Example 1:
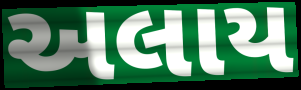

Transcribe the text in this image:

અલાય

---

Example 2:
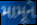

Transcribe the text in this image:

મામૂને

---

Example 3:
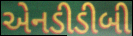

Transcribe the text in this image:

એનડીડીબી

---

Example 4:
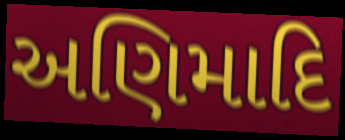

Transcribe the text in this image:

અણિમાદિ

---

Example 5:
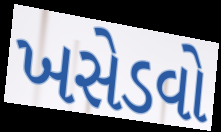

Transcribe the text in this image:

ખસેડવો